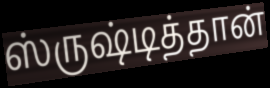
ஸ்ருஷ்டித்தான்